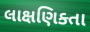
લાક્ષણિક્તા